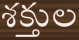
శక్తుల